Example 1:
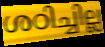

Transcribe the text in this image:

ശഠിച്ചില്ല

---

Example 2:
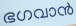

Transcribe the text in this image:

ഭഗവാൻ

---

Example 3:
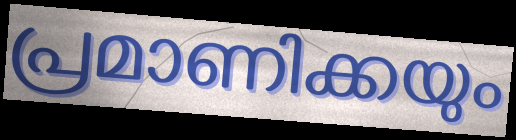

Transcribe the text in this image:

പ്രമാണിക്കയും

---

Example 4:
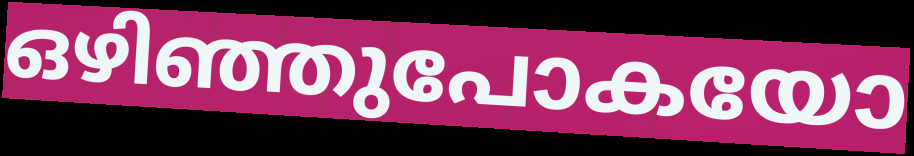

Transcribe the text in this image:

ഒഴിഞ്ഞുപോകയോ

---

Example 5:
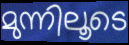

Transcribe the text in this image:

മുന്നിലൂടെ